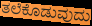
ತಲೆಕೊಡುವುದು